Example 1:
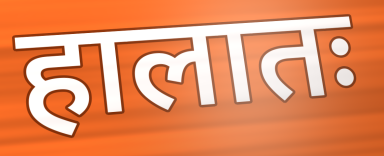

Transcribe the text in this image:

हालातः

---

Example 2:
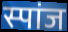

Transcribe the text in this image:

स्पांज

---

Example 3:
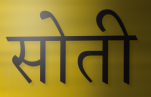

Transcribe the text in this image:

सोती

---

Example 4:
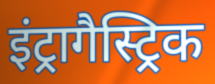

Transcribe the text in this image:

इंट्रागैस्ट्रिक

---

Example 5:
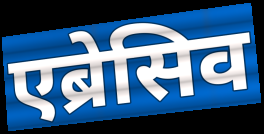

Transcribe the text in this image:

एब्रेसिव